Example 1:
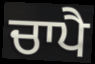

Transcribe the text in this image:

ਚਾਪੈ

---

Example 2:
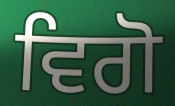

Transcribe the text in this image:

ਵਿਗੋ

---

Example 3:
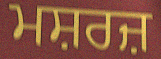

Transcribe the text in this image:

ਮਸ਼ਰਜ਼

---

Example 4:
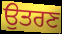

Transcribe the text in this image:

ਉਤਰਣ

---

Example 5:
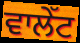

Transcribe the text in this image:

ਵਾਲੇੱਟ